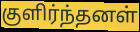
குளிர்ந்தனள்